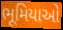
ભૂમિયાઓ